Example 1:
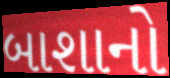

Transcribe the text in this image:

બાશાનો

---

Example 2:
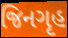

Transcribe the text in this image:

જિનગૃહ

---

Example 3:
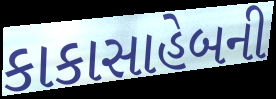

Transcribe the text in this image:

કાકાસાહેબની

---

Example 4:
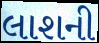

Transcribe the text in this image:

લાશની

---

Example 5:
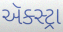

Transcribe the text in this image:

ઍક્સ્ટ્રા